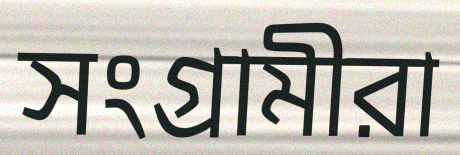
সংগ্রামীরা